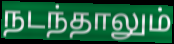
நடந்தாலும்